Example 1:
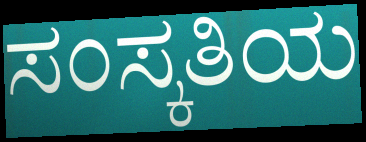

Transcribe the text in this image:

ಸಂಸ್ಕತಿಯ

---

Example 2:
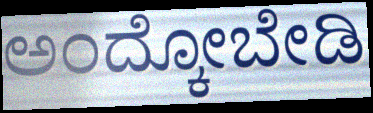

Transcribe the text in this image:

ಅಂದ್ಕೋಬೇಡಿ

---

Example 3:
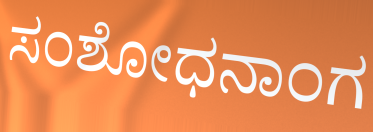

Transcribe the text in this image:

ಸಂಶೋಧನಾಂಗ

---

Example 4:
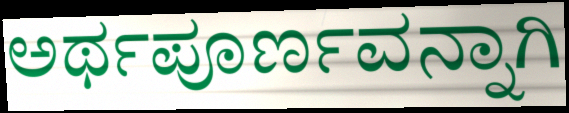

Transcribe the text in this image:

ಅರ್ಥಪೂರ್ಣವನ್ನಾಗಿ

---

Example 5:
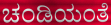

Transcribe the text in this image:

ಚಂಡಿಯಂತೆ